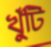
খুঁটি